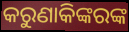
କରୁଣାକିଙ୍କରଙ୍କ